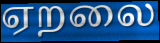
ஏறலை